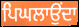
ਪਿਘਲਾਉਂਦਾ